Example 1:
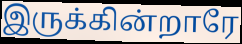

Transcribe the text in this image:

இருக்கின்றாரே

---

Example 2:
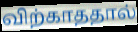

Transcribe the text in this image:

விற்காததால்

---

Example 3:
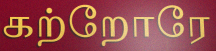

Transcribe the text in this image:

கற்றோரே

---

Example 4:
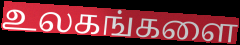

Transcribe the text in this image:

உலகங்களை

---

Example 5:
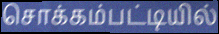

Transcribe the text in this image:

சொக்கம்பட்டியில்